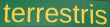
terrestris